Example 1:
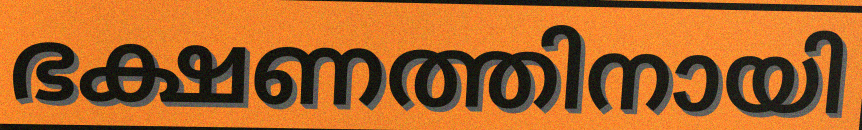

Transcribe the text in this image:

ഭക്ഷണത്തിനായി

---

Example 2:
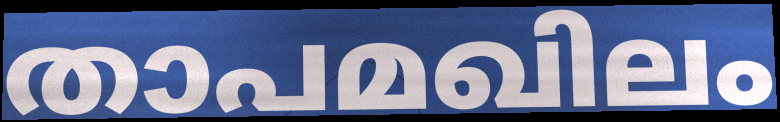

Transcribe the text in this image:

താപമഖിലം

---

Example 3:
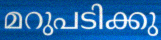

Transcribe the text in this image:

മറുപടിക്കു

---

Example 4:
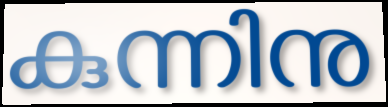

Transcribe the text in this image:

കുന്നിനു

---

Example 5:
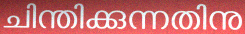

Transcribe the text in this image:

ചിന്തിക്കുന്നതിനു